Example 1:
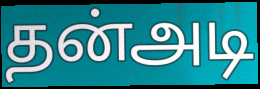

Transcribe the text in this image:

தன்அடி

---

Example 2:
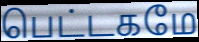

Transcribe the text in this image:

பெட்டகமே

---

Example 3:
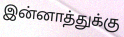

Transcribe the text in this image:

இன்னாத்துக்கு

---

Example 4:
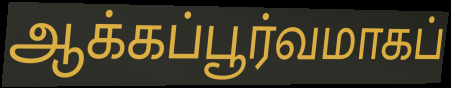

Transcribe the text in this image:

ஆக்கப்பூர்வமாகப்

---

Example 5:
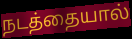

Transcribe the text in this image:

நடத்தையால்